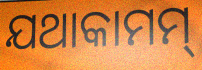
ଯଥାକାମମ୍